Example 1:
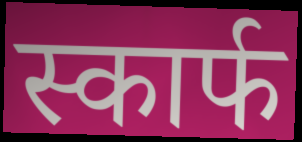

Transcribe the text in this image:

स्कार्फ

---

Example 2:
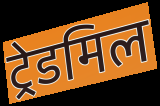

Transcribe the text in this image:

ट्रेडमिल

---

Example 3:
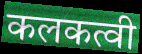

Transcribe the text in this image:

कलकत्वी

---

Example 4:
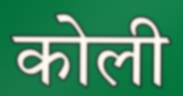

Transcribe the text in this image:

कोली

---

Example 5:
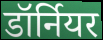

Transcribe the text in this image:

डॉर्नियर